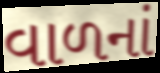
વાળનાં